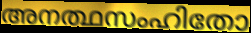
അനത്ഥസംഹിതോ